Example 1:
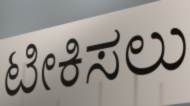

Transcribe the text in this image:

ಟೀಕಿಸಲು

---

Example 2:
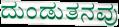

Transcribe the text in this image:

ದುಂಡುತನವು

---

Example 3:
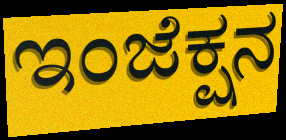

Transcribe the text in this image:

ಇಂಜೆಕ್ಷನ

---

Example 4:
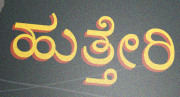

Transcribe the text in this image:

ಹುತ್ತೇರಿ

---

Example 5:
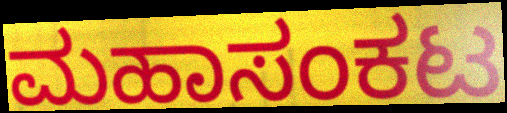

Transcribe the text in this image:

ಮಹಾಸಂಕಟ